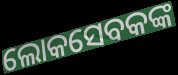
ଲୋକସେବକଙ୍କ